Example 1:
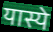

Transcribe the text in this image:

यास्ये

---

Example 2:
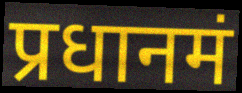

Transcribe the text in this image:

प्रधानमं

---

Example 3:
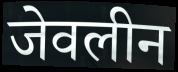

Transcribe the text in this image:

जेवलीन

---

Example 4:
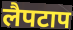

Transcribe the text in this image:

लैपटाप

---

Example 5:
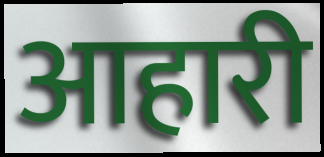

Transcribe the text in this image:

आहारी